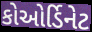
કોઓર્ડિનેટ